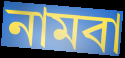
নামবা